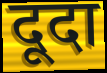
दूदा